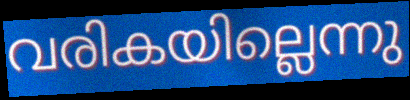
വരികയില്ലെന്നു